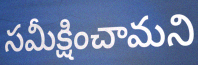
సమీక్షించామని